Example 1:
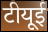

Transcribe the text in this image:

टीयूई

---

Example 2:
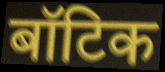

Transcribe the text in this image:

बॉटिक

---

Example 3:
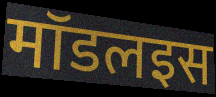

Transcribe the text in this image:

मॉडलइस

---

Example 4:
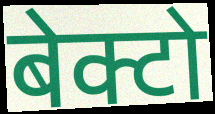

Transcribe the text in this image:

बेक्टो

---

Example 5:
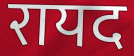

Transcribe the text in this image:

रायद